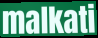
malkati